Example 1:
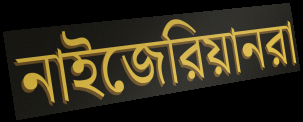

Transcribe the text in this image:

নাইজেরিয়ানরা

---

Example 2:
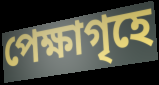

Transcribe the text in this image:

পেক্ষাগৃহে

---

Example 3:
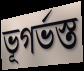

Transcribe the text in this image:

ভূগর্ভস্ত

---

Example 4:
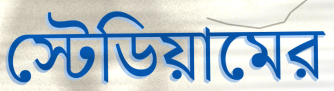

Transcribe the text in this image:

স্টেডিয়ামের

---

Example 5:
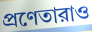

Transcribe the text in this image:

প্রণেতারাও